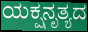
ಯಕ್ಷನೃತ್ಯದ